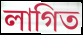
লাগিত